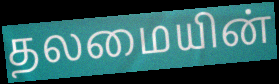
தலமையின்